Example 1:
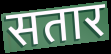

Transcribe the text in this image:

सतार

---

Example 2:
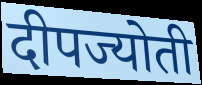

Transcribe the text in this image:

दीपज्योती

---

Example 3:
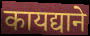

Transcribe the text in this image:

कायद्याने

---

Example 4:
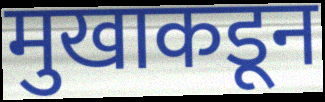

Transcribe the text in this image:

मुखाकडून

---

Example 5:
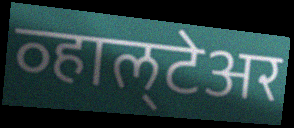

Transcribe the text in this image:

व्हाल्टेअर